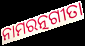
ନାମରତ୍ନଗୀତା